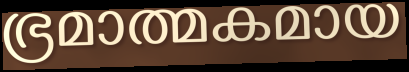
ഭ്രമാത്മകമായ